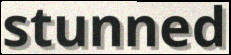
stunned